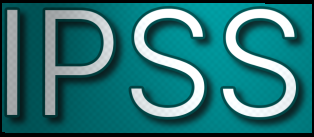
IPSS